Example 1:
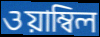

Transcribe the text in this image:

ওয়াম্বিল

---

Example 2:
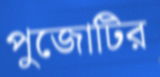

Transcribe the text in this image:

পুজোটির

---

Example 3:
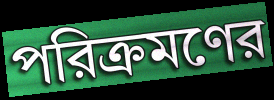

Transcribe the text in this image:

পরিক্রমণের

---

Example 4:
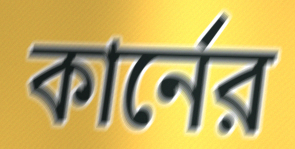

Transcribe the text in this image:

কার্নের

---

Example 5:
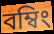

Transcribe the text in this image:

বম্বিং